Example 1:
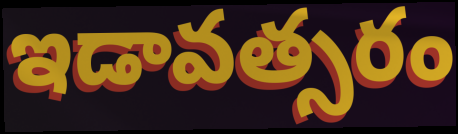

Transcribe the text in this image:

ఇడావత్సరం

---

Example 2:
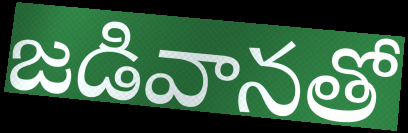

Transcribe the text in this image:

జడివానతో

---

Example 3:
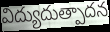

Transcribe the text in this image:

విద్యుదుత్పాదన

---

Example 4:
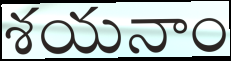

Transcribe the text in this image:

శయనాం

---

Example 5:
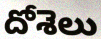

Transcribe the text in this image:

దోశెలు